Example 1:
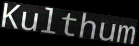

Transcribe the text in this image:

Kulthum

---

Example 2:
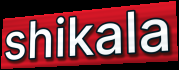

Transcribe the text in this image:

shikala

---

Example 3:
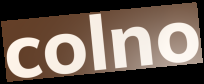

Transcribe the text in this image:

colno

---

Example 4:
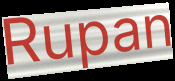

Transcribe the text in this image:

Rupan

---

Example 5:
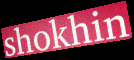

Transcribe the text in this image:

shokhin